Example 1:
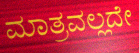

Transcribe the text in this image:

ಮಾತ್ರವಲ್ಲದೇ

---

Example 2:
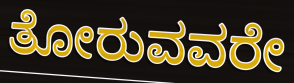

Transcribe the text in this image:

ತೋರುವವರೇ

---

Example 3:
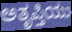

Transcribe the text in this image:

ಅತೃಪ್ತಿಯು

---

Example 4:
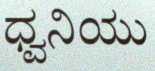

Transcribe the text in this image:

ಧ್ವನಿಯು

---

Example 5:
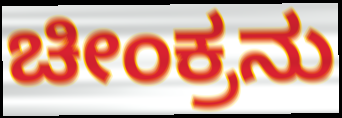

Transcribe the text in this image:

ಚೀಂಕ್ರನು